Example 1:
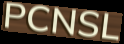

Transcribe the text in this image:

PCNSL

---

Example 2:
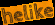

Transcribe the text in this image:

helike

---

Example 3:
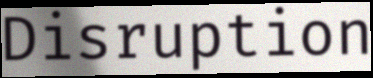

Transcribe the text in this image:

Disruption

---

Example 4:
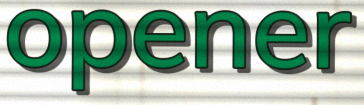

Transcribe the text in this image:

opener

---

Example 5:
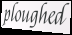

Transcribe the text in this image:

ploughed